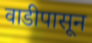
वाडीपासून